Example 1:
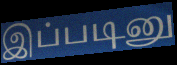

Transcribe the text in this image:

இப்படினு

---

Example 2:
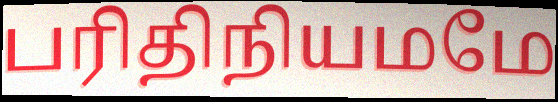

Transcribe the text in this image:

பரிதிநியமமே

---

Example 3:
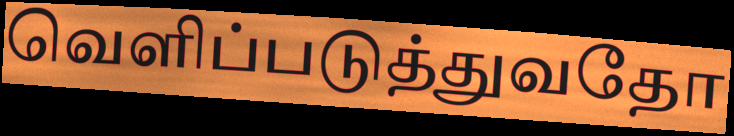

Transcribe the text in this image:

வெளிப்படுத்துவதோ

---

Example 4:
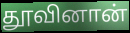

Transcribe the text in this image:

தூவினான்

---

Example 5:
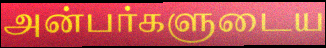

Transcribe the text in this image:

அன்பர்களுடைய